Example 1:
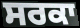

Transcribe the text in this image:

ਸਰਕਾ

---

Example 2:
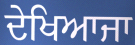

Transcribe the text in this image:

ਦੇਖਿਆਜਾ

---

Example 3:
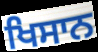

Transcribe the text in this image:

ਖਿਸਾਨ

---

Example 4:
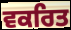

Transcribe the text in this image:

ਵਕਰਿਤ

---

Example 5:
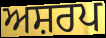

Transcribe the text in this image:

ਅਸ਼ਰਪ